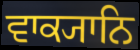
ਵਾਕ੍ਯਾਨਿ